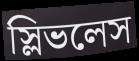
স্লিভলেস